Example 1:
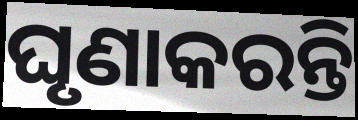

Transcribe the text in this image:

ଘୃଣାକରନ୍ତି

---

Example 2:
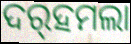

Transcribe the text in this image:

ଦର୍‌ହମଲା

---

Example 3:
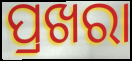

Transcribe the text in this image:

ପ୍ରଖରା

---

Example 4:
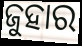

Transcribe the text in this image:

ଜୁହାର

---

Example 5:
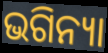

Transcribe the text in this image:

ଭଗିନ୍ୟା